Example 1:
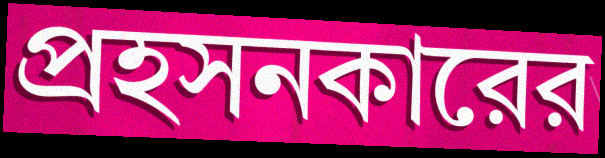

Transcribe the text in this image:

প্রহসনকারের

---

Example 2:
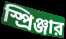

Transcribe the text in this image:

স্প্রিঞ্জার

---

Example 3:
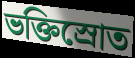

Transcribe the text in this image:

ভক্তিস্রোত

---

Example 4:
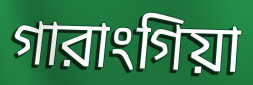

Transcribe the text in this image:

গারাংগিয়া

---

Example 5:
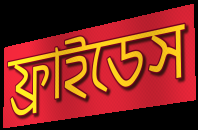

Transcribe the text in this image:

ফ্রাইডেস